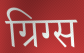
ग्रिग्स